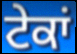
ਟੇਕਾਂ